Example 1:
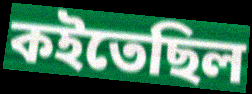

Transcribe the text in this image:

কইতেছিল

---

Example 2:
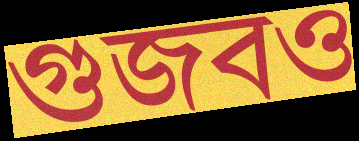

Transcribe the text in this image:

গুজবও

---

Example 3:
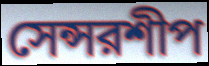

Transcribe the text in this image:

সেন্সরশীপ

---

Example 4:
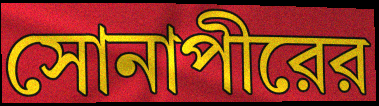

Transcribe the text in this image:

সোনাপীরের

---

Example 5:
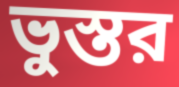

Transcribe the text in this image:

ভুস্তর